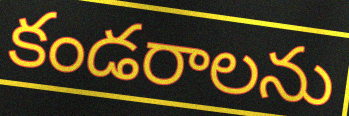
కండరాలను